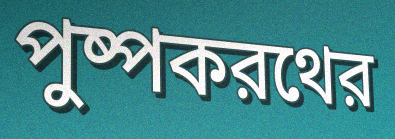
পুষ্পকরথের